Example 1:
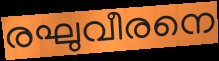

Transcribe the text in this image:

രഘുവീരനെ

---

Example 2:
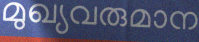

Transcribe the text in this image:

മുഖ്യവരുമാന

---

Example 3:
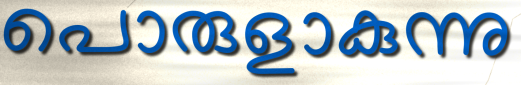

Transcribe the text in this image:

പൊരുളാകുന്നു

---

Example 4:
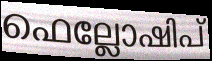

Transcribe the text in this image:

ഫെല്ലോഷിപ്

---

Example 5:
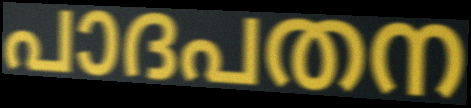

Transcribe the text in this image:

പാദപതന